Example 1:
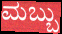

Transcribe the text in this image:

ಮಬ್ಬು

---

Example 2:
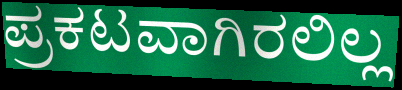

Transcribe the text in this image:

ಪ್ರಕಟವಾಗಿರಲಿಲ್ಲ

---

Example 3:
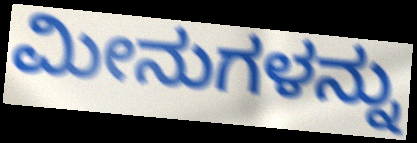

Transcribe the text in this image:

ಮೀನುಗಳನ್ನು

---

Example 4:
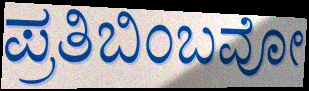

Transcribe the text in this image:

ಪ್ರತಿಬಿಂಬವೋ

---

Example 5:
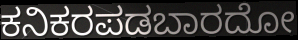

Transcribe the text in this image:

ಕನಿಕರಪಡಬಾರದೋ